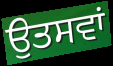
ਉਤਸਵਾਂ